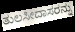
ತುಲಸೀದಾಸರನ್ನು